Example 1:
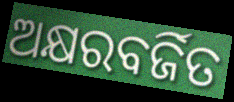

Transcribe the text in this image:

ଅକ୍ଷରବର୍ଜିତ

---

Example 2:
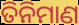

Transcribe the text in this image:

ତିନିମାଣ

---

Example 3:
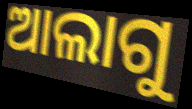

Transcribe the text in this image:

ଆଲାଗୁ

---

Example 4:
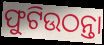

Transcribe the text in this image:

ଫୁଟିଉଠନ୍ତା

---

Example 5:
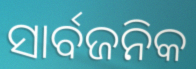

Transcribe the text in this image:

ସାର୍ବଜନିକ